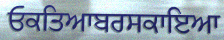
ਓਕਤਿਆਬਰਸਕਾਇਆ